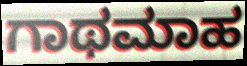
ಗಾಥಮಾಹ